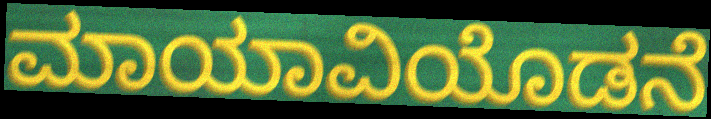
ಮಾಯಾವಿಯೊಡನೆ